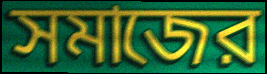
সমাজের